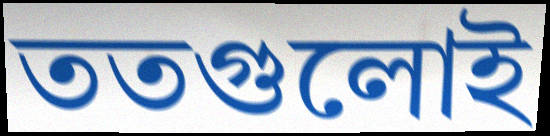
ততগুলোই